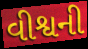
વીશ્વની